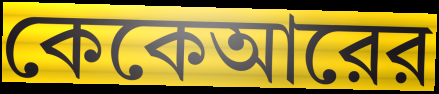
কেকেআরের